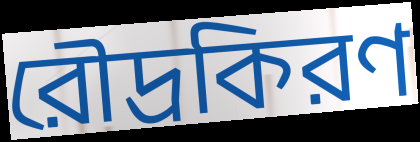
রৌদ্রকিরণ